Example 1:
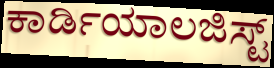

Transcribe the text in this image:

ಕಾರ್ಡಿಯಾಲಜಿಸ್ಟ್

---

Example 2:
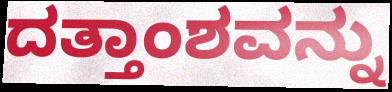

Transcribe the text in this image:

ದತ್ತಾಂಶವನ್ನು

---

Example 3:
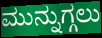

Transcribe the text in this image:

ಮುನ್ನುಗ್ಗಲು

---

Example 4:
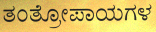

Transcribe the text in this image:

ತಂತ್ರೋಪಾಯಗಳ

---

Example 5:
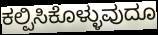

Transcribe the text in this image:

ಕಲ್ಪಿಸಿಕೊಳ್ಳುವುದೂ